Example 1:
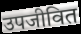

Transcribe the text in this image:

उपजीवित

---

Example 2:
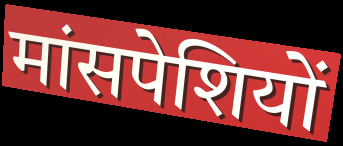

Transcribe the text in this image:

मांसपेशियों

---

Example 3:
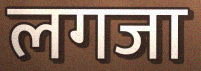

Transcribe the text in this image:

लगजा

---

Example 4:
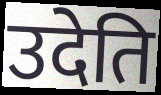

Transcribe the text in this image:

उदेति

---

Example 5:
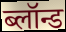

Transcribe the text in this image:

ब्लॉन्ड